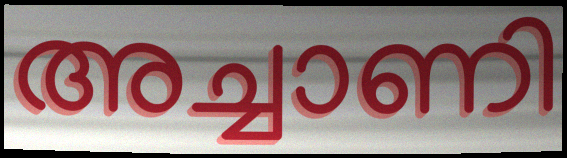
അച്ചാണി